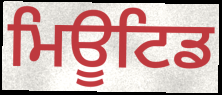
ਮਿਊਟਿਡ